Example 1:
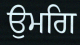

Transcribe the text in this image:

ਉਮਗਿ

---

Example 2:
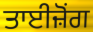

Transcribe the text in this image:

ਤਾਈਜ਼ੋਂਗ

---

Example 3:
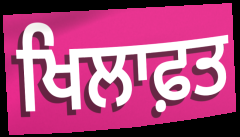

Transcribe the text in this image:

ਖਿਲਾਫ਼ਤ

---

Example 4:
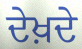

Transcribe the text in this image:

ਦੇਖ਼ਦੇ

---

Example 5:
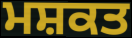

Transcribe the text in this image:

ਮਸ਼ਕਤ